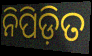
ନିପିଡ଼ିତ